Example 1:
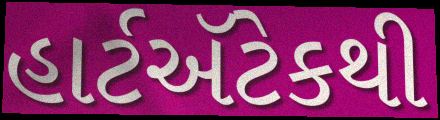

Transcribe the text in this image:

હાર્ટઍટેકથી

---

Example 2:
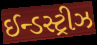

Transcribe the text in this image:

ઈન્ડસ્ટ્રીઝ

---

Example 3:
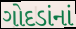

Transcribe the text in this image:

ગોદડાંનાં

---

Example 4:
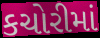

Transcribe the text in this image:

કચોરીમાં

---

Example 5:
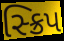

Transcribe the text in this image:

સ્ક્રિપ